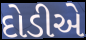
દોડીએ